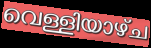
വെള്ളിയാഴ്‌ച